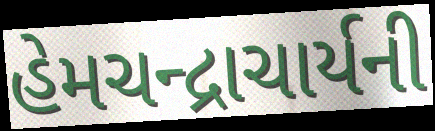
હેમચન્દ્રાચાર્યની